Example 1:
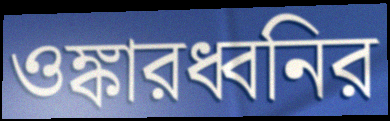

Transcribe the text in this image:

ওঙ্কারধ্বনির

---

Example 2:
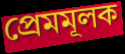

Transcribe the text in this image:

প্রেমমূলক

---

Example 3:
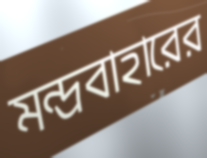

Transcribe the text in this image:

মন্দ্রবাহারের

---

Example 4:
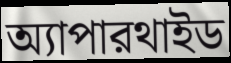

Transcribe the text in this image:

অ্যাপারথাইড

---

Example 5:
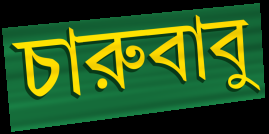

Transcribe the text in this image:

চারুবাবু